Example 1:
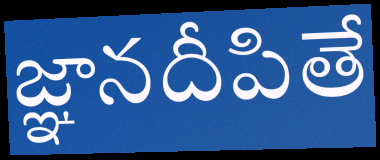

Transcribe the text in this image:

జ్ఞానదీపితే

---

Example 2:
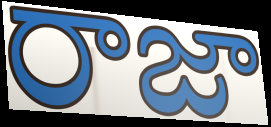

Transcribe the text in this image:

రాజా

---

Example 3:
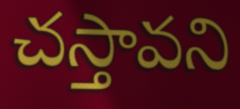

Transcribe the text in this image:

చస్తావని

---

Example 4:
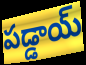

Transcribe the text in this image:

పడ్డాయ్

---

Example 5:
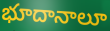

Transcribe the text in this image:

భూదానాలూ